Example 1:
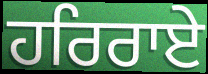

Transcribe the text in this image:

ਹਰਿਰਾਏ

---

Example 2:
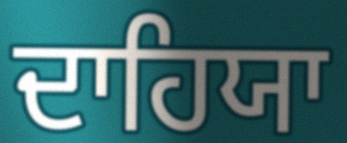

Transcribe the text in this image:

ਦਾਹਿਯਾ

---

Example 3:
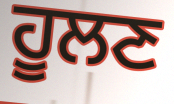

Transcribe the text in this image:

ਹੂਲਣ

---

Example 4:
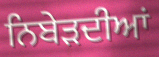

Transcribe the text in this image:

ਨਿਬੇੜਦੀਆਂ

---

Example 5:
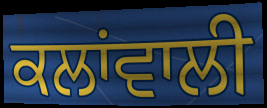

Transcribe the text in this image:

ਕਲਾਂਵਾਲੀ